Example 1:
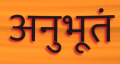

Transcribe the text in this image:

अनुभूतं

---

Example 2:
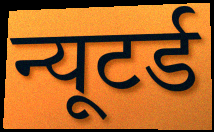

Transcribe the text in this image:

न्यूटर्ड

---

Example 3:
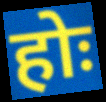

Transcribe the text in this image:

होः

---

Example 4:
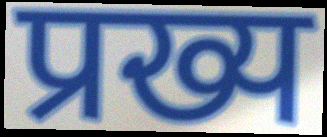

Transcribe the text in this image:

प्रख्य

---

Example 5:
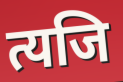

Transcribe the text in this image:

त्यजि